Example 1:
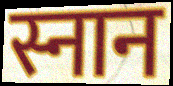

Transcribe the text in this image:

स्नान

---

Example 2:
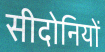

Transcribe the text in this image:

सीदोनियों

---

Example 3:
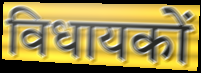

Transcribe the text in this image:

विधायकों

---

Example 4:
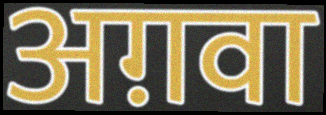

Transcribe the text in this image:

अग़वा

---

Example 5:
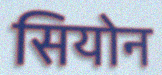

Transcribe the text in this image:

सियोन